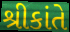
શ્રીકાંતે